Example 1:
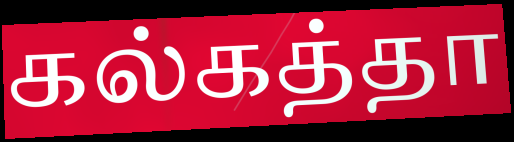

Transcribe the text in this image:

கல்கத்தா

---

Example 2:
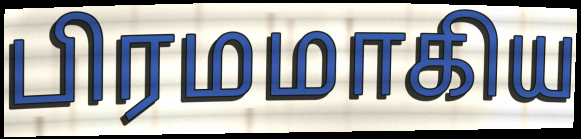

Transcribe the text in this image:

பிரமமாகிய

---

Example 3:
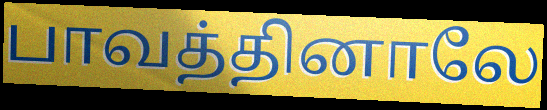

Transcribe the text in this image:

பாவத்தினாலே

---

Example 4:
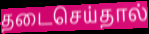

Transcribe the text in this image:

தடைசெய்தால்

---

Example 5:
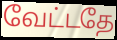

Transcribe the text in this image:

வேட்டதே